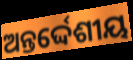
ଅନ୍ତର୍ଦ୍ଦେଶୀୟ